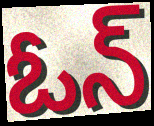
ఓన్